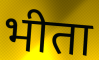
भीता